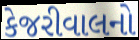
કેજરીવાલનો